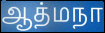
ஆத்மநா